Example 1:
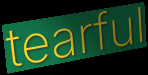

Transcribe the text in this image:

tearful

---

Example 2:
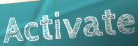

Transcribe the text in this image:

Activate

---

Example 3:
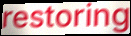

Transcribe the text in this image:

restoring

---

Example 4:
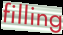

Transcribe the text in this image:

filling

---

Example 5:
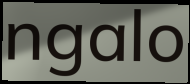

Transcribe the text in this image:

ngalo